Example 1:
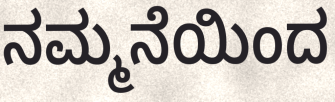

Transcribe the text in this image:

ನಮ್ಮನೆಯಿಂದ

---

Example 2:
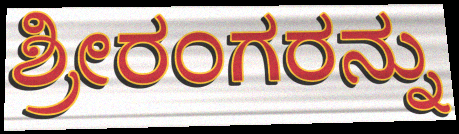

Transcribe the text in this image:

ಶ್ರೀರಂಗರನ್ನು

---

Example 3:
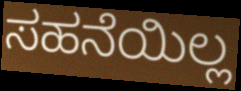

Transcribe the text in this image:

ಸಹನೆಯಿಲ್ಲ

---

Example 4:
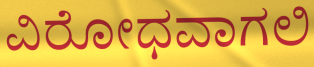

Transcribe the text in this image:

ವಿರೋಧವಾಗಲಿ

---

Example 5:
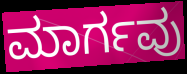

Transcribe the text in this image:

ಮಾರ್ಗವು